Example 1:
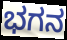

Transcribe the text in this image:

ಭಗನ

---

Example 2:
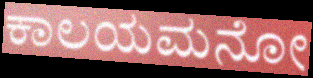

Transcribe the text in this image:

ಕಾಲಯಮನೋ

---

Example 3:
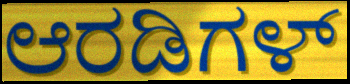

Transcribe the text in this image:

ಆರಡಿಗಳ್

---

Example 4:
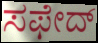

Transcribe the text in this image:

ಸಫೇದ್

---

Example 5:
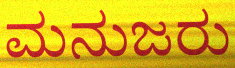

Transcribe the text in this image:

ಮನುಜರು